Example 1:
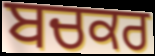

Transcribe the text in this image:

ਬਚਕਰ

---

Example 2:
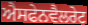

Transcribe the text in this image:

ਐਸਫੇਨਵੈਲਰੇਟ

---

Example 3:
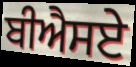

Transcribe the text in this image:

ਬੀਐਸਏ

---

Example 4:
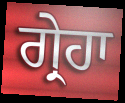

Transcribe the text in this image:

ਗ੍ਰੇਹਾ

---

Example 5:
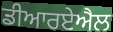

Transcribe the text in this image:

ਡੀਆਰਏਐਲ